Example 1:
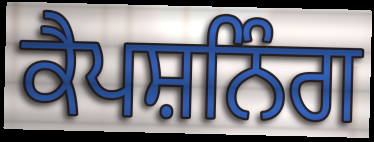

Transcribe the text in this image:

ਕੈਪਸ਼ਨਿੰਗ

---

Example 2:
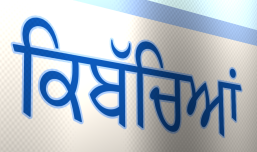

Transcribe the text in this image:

ਕਿਬੱਚਿਆਂ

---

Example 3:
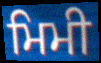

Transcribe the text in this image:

ਮਿਮੀ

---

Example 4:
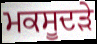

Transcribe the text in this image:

ਮਕਸੂਦੜੇ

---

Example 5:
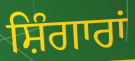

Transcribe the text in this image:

ਸ਼ਿੰਗਾਰਾਂ